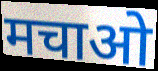
मचाओ